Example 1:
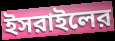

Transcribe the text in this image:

ইসরাইলের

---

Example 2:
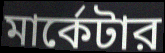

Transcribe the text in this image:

মার্কেটার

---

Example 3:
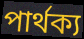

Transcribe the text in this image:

পার্থক্য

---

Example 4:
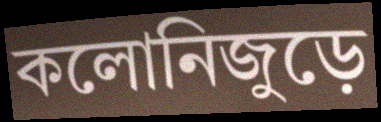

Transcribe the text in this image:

কলোনিজুড়ে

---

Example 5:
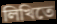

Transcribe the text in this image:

লিখিতে